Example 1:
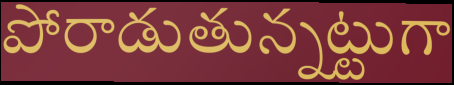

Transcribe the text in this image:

పోరాడుతున్నట్టుగా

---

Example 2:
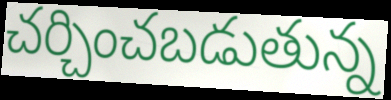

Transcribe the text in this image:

చర్చించబడుతున్న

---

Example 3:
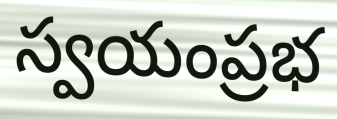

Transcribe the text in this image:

స్వయంప్రభ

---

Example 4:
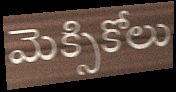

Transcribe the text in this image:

మెక్సికోలు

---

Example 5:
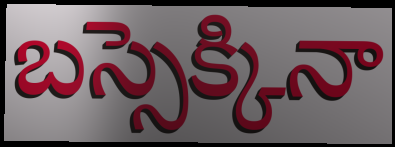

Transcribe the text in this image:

బస్సెక్కినా